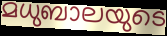
മധുബാലയുടെ